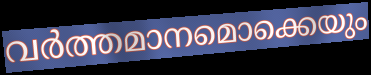
വർത്തമാനമൊക്കെയും